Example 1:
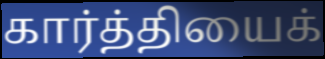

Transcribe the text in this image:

கார்த்தியைக்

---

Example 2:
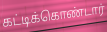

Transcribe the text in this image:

கட்டிக்கொண்டார்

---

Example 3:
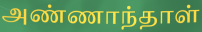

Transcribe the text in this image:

அண்ணாந்தாள்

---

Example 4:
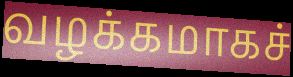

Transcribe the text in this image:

வழக்கமாகச்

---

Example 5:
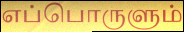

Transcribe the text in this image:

எப்பொருளும்